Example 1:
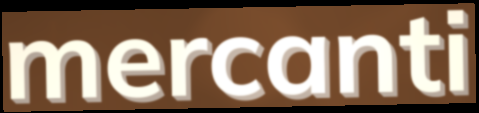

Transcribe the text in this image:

mercanti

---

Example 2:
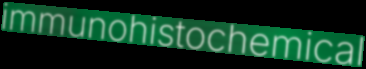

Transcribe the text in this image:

immunohistochemical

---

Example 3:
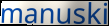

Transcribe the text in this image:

manuski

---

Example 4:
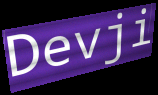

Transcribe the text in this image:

Devji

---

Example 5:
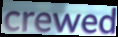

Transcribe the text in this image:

crewed